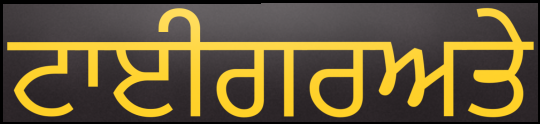
ਟਾਈਗਰਅਤੇ